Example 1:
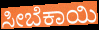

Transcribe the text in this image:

ಸೀಬೆಕಾಯಿ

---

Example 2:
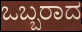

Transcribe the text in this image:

ಒಬ್ಬರಾದ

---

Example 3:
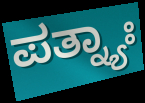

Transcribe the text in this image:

ಪತ್ನ್ಯಾಃ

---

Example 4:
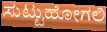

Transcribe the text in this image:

ಸುಟ್ಟುಹೋಗಲಿ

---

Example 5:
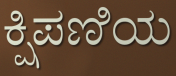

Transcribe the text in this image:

ಕ್ಷಿಪಣಿಯ